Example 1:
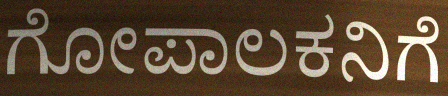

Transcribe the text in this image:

ಗೋಪಾಲಕನಿಗೆ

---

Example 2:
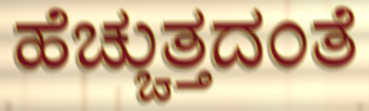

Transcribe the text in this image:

ಹೆಚ್ಚುತ್ತದಂತೆ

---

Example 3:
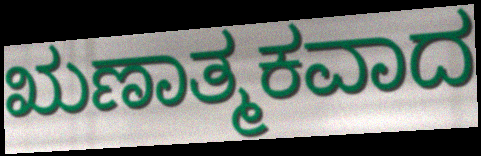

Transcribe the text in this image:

ಋಣಾತ್ಮಕವಾದ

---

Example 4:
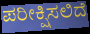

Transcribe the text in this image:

ಪರೀಕ್ಷಿಸಲಿದೆ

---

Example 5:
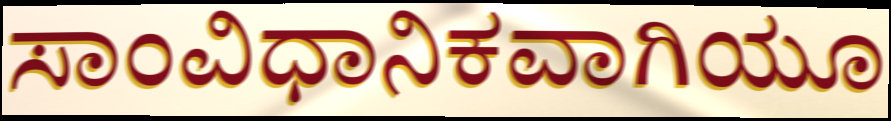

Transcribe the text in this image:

ಸಾಂವಿಧಾನಿಕವಾಗಿಯೂ